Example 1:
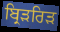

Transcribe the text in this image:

ਬ੍ਰਿੜਰਿੜ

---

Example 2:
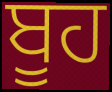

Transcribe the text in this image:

ਬੂਹ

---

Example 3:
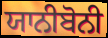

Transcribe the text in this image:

ਯਾਨੀਬੋਨੀ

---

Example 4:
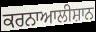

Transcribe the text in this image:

ਕਰਨਾਆਲੀਸ਼ਾਨ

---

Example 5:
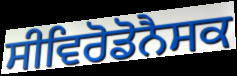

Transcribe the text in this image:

ਸੀਵਿਰੋਡੋਨੈਸਕ